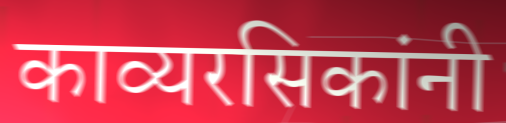
काव्यरसिकांनी